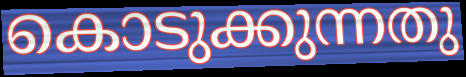
കൊടുക്കുന്നതു